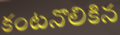
కంటనొలికిన